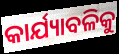
କାର୍ଯ୍ୟାବଳିକୁ